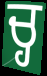
ਚ੍ਹ